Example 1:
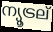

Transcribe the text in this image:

ന്യൂട്രല്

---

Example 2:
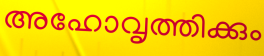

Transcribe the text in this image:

അഹോവൃത്തിക്കും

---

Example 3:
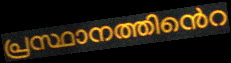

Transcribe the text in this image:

പ്രസ്ഥാനത്തിൻെറ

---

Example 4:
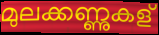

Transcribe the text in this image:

മുലക്കണ്ണുകള്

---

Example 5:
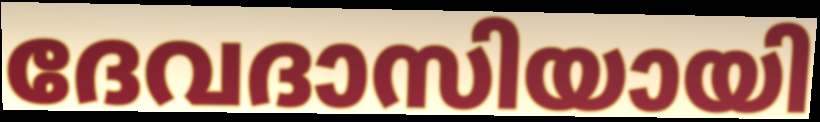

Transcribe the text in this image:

ദേവദാസിയായി